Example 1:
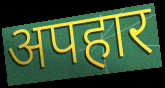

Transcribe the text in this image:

अपहार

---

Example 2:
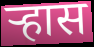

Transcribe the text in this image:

ऱ्हास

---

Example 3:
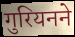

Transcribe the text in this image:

गुरियनने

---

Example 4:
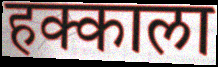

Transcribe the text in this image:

हक्काला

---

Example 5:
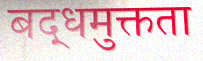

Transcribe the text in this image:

बद्धमुक्तता